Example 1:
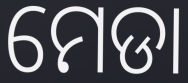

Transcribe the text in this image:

ମେଡା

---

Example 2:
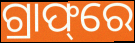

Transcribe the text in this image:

ଗ୍ରାଫ୍‌ରେ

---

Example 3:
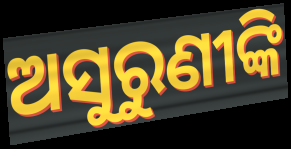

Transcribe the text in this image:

ଅସୁରୁଣୀଙ୍କି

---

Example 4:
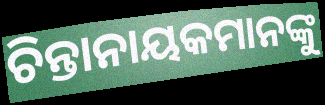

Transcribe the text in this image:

ଚିନ୍ତାନାୟକମାନଙ୍କୁ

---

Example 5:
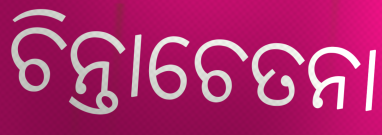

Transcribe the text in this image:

ଚିନ୍ତାଚେତନା